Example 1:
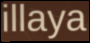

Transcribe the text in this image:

illaya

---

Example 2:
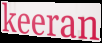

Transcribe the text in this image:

keeran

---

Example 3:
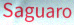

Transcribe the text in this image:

Saguaro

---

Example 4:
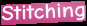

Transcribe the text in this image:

Stitching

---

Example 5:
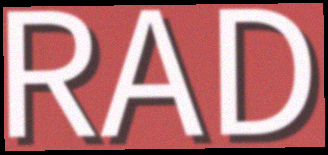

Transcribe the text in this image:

RAD